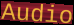
Audio